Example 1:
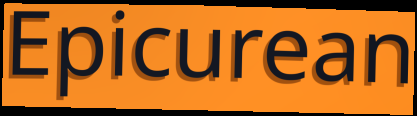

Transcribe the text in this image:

Epicurean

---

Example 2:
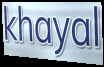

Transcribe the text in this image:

khayal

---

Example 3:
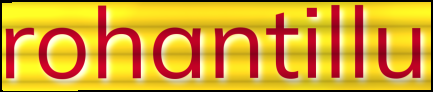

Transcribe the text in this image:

rohantillu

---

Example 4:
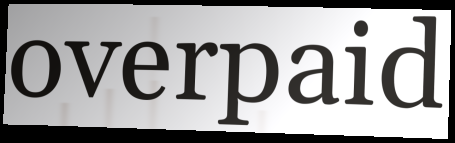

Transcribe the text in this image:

overpaid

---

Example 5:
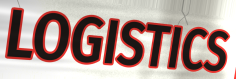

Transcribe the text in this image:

LOGISTICS